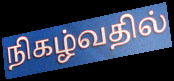
நிகழ்வதில்